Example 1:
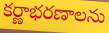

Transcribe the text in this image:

కర్ణాభరణాలను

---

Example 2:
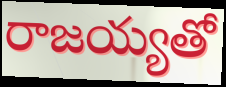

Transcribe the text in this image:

రాజయ్యతో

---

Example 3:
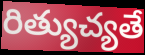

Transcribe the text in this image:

రిత్యుచ్యతే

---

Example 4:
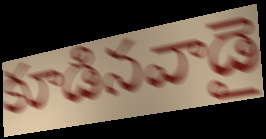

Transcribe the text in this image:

కూడినవాడై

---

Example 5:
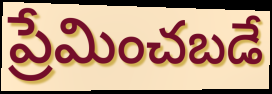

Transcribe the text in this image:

ప్రేమించబడే